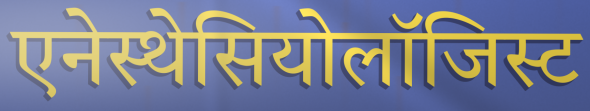
एनेस्थेसियोलॉजिस्ट